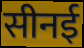
सीनई